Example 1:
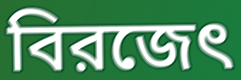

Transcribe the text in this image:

বিরজেৎ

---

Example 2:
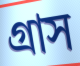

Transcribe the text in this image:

গ্রাস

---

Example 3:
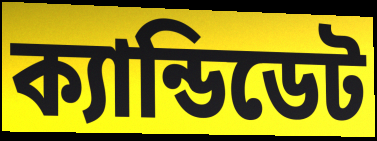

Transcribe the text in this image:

ক্যান্ডিডেট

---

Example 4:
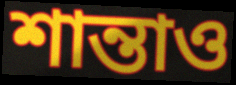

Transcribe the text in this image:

শান্তাও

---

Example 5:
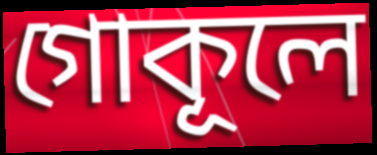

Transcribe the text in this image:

গোকূলে